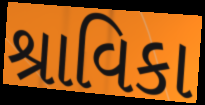
શ્રાવિકા